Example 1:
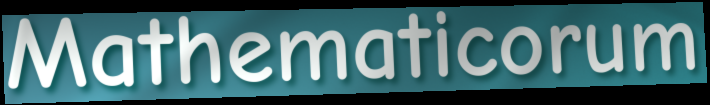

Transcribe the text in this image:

Mathematicorum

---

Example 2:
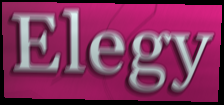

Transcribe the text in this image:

Elegy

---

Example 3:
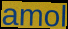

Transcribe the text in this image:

amol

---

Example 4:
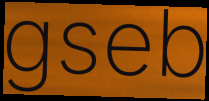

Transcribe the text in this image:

gseb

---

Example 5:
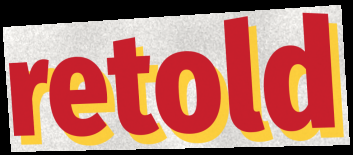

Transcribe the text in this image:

retold